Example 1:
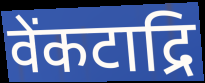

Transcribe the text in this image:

वेंकटाद्रि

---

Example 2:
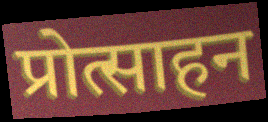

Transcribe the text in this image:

प्रोत्‍साहन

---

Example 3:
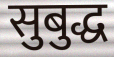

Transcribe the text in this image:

सुबुद्ध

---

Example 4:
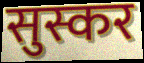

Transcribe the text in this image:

सुस्कर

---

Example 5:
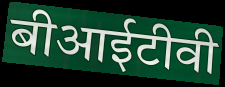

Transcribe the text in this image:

बीआईटीवी